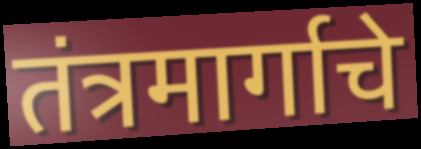
तंत्रमार्गाचे